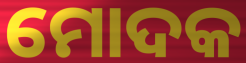
ମୋଦକ